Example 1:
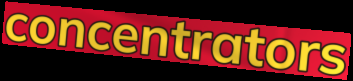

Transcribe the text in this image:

concentrators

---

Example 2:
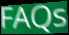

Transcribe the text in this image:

FAQs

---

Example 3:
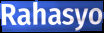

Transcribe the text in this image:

Rahasyo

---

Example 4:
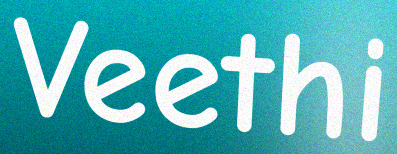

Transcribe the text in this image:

Veethi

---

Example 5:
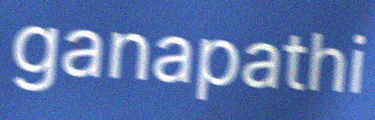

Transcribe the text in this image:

ganapathi